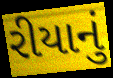
રીયાનું